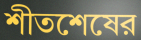
শীতশেষের